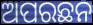
ଅପରଛନ